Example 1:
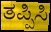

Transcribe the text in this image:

ತಪ್ಪಿಸಿ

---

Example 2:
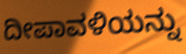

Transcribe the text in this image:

ದೀಪಾವಳಿಯನ್ನು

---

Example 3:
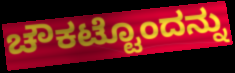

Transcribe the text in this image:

ಚೌಕಟ್ಟೊಂದನ್ನು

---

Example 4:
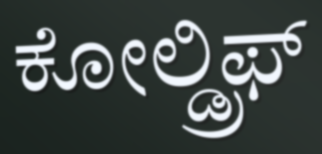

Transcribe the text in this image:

ಕೋಲ್ಡ್ರಿಫ್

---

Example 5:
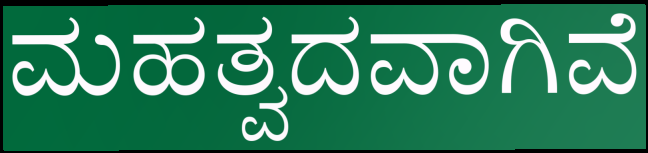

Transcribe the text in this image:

ಮಹತ್ವದವಾಗಿವೆ